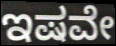
ಇಷವೇ